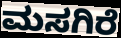
ಮಸಗಿರೆ